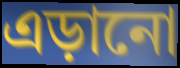
এড়ানো